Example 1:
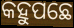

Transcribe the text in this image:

କହୁପଛେ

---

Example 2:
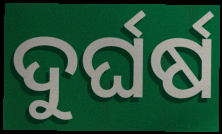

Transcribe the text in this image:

ଦୁର୍ଘର୍ଷ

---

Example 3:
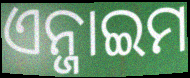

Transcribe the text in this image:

ଏନ୍ଜାଇମ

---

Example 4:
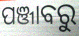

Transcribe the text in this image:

ପଞ୍ଜାବରୁ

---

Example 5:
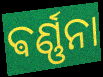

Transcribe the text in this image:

ଵର୍ଣ୍ଣନା